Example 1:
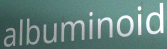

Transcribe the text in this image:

albuminoid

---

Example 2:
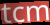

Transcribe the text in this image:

tcm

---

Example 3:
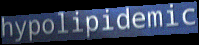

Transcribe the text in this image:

hypolipidemic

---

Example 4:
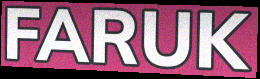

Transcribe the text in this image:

FARUK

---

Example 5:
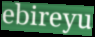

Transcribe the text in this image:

ebireyu